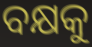
ବକ୍ଷକୁ